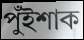
পুঁইশাক